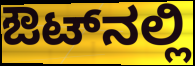
ಔಟ್‌ನಲ್ಲಿ